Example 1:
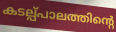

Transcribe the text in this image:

കടല്പ്പാലത്തിന്റെ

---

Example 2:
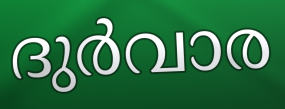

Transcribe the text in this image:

ദുർവാര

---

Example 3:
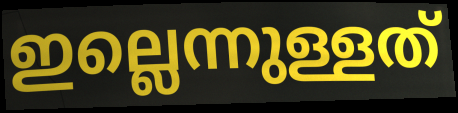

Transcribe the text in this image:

ഇല്ലെന്നുള്ളത്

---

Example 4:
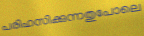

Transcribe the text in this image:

പരിഹസിക്കുന്നതുപോലെ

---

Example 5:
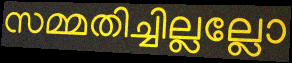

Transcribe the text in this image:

സമ്മതിച്ചില്ലല്ലോ